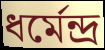
ধর্মেন্দ্র